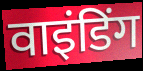
वाइंडिंग